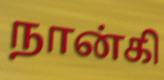
நான்கி